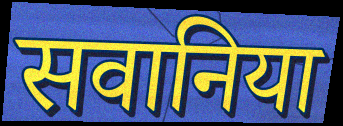
सवानिया